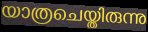
യാത്രചെയ്തിരുന്നു